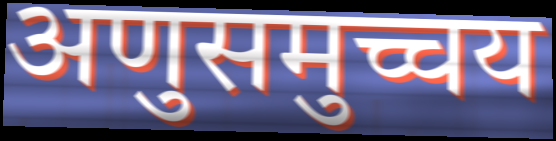
अणुसमुच्चय